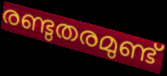
രണ്ടുതരമുണ്ട്